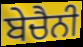
ਬੇਚੈਨੀ